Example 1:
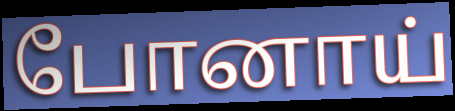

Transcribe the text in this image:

போனாய்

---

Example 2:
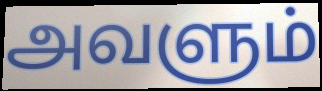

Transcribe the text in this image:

அவளும்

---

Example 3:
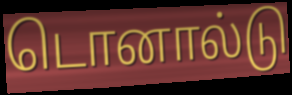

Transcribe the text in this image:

டொனால்டு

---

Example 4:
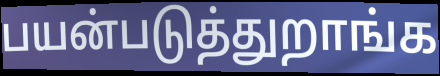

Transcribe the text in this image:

பயன்படுத்துறாங்க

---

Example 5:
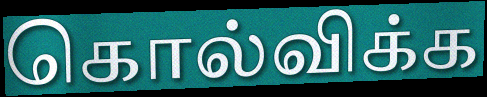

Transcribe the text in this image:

கொல்விக்க